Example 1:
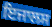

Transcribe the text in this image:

ਇਜਾਲਸ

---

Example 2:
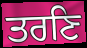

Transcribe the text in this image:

ਤਰਣਿ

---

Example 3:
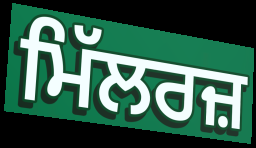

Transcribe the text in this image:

ਮਿੱਲਰਜ਼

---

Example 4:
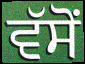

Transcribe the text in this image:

ਵੱਸੋਂ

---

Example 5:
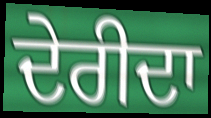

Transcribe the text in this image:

ਦੇਰੀਦਾ